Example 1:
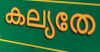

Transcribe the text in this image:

കല്യതേ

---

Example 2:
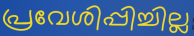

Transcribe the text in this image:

പ്രവേശിപ്പിച്ചില്ല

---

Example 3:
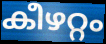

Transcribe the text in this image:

കീഴറ്റം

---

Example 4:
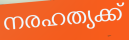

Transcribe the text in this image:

നരഹത്യക്ക്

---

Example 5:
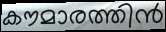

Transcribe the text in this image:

കൗമാരത്തിൻ